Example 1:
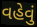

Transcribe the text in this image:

વહેવું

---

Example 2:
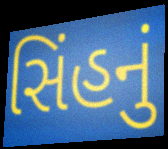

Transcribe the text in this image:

સિંહનું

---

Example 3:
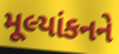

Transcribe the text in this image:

મૂલ્યાંકનને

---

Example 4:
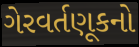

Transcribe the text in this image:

ગેરવર્તણૂકનો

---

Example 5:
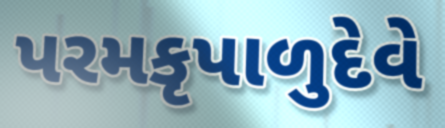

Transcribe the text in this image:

પરમકૃપાળુદેવે